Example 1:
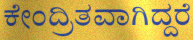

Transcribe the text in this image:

ಕೇಂದ್ರಿತವಾಗಿದ್ದರೆ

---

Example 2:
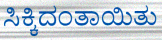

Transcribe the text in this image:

ಸಿಕ್ಕಿದಂತಾಯಿತು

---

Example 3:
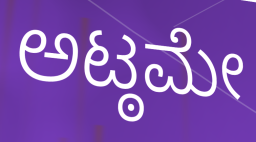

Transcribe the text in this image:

ಅಟ್ಠಮೇ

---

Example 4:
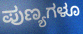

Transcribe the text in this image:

ಪುಣ್ಯಗಳೂ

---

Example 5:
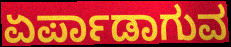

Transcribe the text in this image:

ಏರ್ಪಾಡಾಗುವ